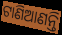
ଟାଣିଆଣନ୍ତି